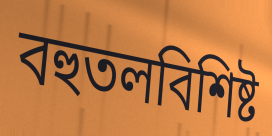
বহুতলবিশিষ্ট